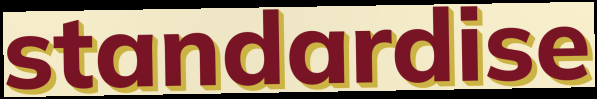
standardise